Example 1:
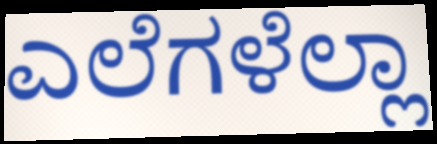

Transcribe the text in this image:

ಎಲೆಗಳೆಲ್ಲಾ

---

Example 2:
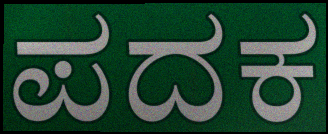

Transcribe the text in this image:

ಪದಕ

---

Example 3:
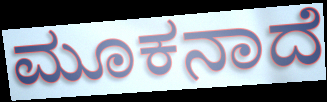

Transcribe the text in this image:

ಮೂಕನಾದೆ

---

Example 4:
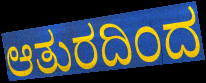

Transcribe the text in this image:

ಆತುರದಿಂದ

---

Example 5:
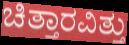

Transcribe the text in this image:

ಚಿತ್ತಾರವಿತ್ತು